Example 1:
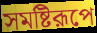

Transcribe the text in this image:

সমষ্টিরূপে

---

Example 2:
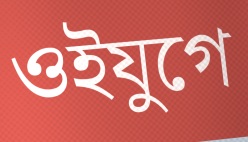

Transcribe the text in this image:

ওইযুগে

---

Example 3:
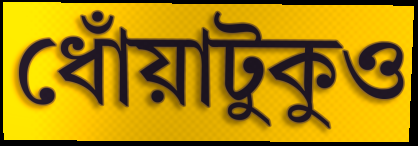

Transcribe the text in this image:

ধোঁয়াটুকুও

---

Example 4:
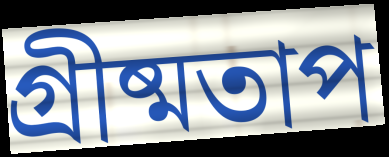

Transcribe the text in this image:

গ্রীষ্মতাপ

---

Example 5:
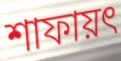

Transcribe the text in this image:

শাফায়ৎ